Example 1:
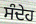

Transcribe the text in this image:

ਸੰਦੇਹ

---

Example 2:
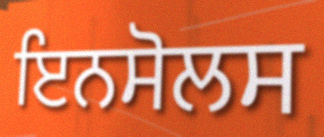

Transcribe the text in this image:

ਇਨਸੋਲਸ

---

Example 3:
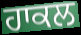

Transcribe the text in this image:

ਹਾਕਲ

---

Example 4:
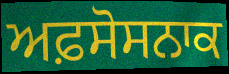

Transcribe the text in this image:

ਅਫ਼ਸੋਸਨਾਕ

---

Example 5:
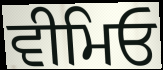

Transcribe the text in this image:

ਵੀਮਿਓ